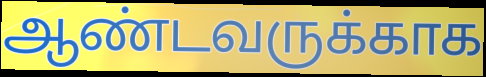
ஆண்டவருக்காக